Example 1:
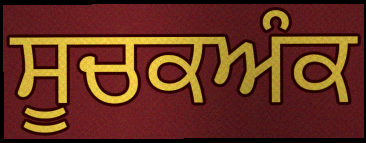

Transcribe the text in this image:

ਸੂਚਕਅੰਕ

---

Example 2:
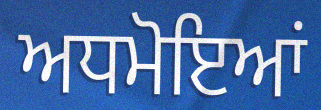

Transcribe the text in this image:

ਅਧਮੋਇਆਂ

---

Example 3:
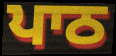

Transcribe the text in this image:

ਪਾਠ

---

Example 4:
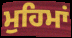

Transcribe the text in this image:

ਮੁਹਿਮਾਂ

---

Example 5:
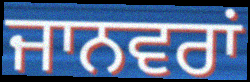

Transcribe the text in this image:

ਜਾਨਵਰਾਂ